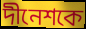
দীনেশকে